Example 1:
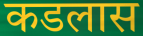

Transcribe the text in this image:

कडलास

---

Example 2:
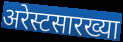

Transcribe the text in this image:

अरेस्टसारख्या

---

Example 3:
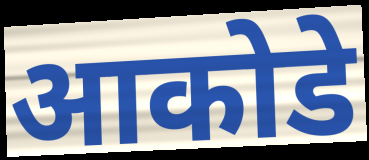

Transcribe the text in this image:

आकोडे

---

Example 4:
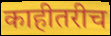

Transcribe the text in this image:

काहीतरीच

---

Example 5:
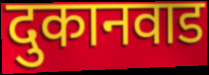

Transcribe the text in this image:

दुकानवाड